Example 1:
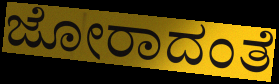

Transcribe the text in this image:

ಜೋರಾದಂತೆ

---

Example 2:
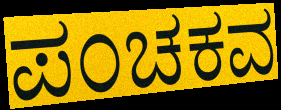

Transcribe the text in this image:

ಪಂಚಕವ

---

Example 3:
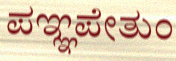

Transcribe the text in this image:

ಪಞ್ಞಪೇತುಂ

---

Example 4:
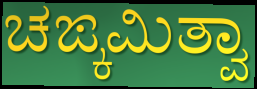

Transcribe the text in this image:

ಚಙ್ಕಮಿತ್ವಾ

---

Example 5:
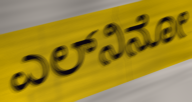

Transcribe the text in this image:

ಎಲ್‍ನಿನೋ